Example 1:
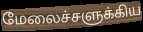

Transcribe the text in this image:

மேலைச்சளுக்கிய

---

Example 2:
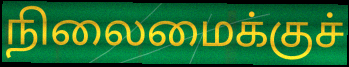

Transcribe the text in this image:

நிலைமைக்குச்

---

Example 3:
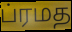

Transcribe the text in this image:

ப்ரமத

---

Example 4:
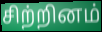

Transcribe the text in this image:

சிற்றினம்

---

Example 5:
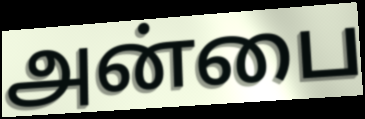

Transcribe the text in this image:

அன்பை